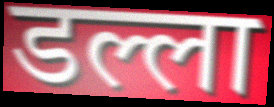
डल्ला